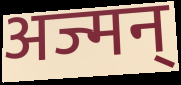
अज्मन्